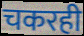
चकरही